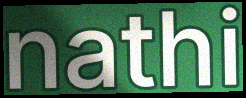
nathi